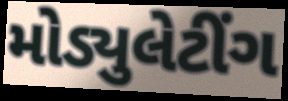
મોડ્યુલેટીંગ